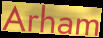
Arham